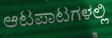
ಆಟಪಾಟಗಳಲ್ಲಿ